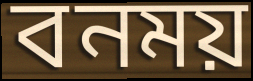
বনময়